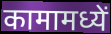
कामामध्यें